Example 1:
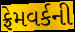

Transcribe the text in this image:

ફ્રેમવર્કની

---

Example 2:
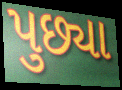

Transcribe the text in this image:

પુછ્યા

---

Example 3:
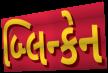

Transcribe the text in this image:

બ્લિન્કેન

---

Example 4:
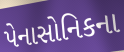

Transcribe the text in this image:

પેનાસોનિકના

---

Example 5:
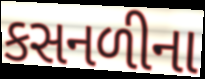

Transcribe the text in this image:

કસનળીના